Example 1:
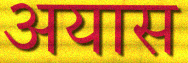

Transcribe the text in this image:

अयास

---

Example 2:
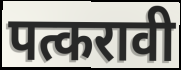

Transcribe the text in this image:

पत्करावी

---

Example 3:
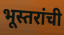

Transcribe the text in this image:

भूस्तरांची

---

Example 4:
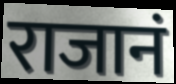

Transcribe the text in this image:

राजानं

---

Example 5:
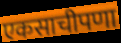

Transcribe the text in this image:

एकसाचीपणा